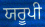
ਯਰੂਪੀ